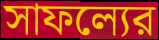
সাফল্যের